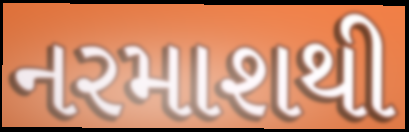
નરમાશથી